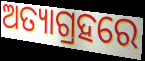
ଅତ୍ୟାଗ୍ରହରେ